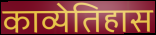
काव्येतिहास